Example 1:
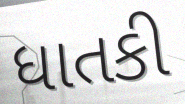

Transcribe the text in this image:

ધાતકી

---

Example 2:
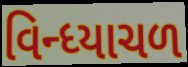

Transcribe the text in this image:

વિન્ધ્યાચળ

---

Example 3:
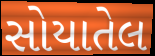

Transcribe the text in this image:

સોયાતેલ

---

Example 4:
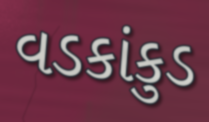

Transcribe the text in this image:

વડકાંકુડ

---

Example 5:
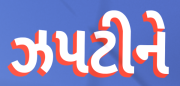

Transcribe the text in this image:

ઝપટીને